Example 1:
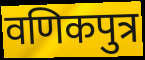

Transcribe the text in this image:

वणिकपुत्र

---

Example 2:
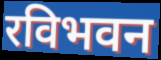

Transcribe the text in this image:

रविभवन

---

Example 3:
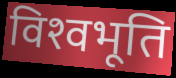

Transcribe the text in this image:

विश्वभूति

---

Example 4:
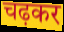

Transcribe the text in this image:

चढ़कर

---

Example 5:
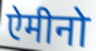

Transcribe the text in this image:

ऐमीनो